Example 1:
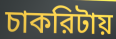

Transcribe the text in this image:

চাকরিটায়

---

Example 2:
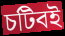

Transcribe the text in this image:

চটিবই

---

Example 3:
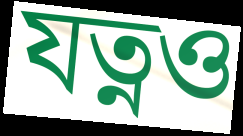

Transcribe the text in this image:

যত্নও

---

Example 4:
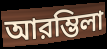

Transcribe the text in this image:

আরম্ভিলা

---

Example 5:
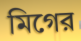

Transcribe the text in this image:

মিগের